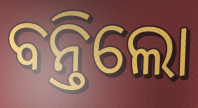
ବନ୍ତିଲୋ